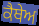
ਕੈਥੇਅ